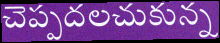
చెప్పదలచుకున్న